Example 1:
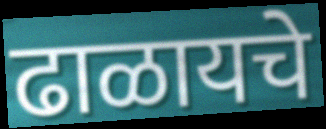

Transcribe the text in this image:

ढाळायचे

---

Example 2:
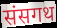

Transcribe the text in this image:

संसगथ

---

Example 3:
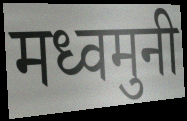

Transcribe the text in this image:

मध्वमुनी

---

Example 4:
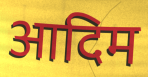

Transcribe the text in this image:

आदिम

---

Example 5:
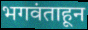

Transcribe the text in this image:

भगवंताहून